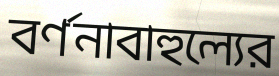
বর্ণনাবাহুল্যের